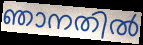
ഞാനതിൽ